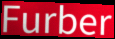
Furber